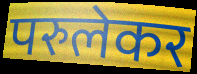
परुलेकर